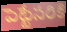
పెట్టేసరికి